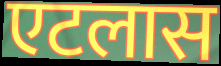
एटलास